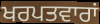
ਖਰਪਤਵਾਰਾਂ